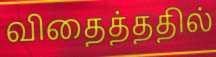
விதைத்ததில்